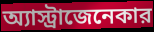
অ্যাস্ট্রাজেনেকার